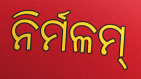
ନିର୍ମଳମ୍